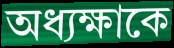
অধ্যক্ষাকে